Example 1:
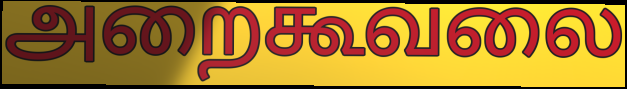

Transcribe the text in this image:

அறைகூவலை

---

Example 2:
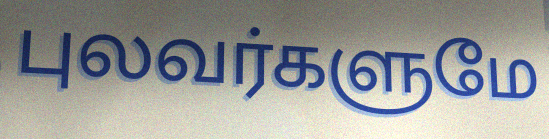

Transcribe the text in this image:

புலவர்களுமே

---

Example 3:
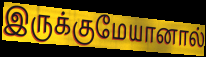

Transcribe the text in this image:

இருக்குமேயானால்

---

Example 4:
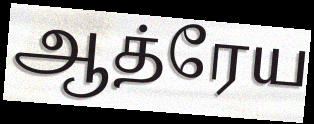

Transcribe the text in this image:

ஆத்ரேய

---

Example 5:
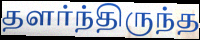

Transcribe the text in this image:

தளர்ந்திருந்த